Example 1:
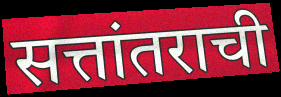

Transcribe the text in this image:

सत्तांतराची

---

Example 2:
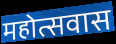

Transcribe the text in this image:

महोत्सवास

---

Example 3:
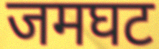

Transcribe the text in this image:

जमघट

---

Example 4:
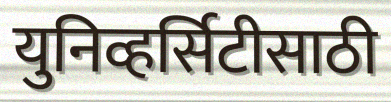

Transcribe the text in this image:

युनिव्हर्सिटीसाठी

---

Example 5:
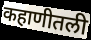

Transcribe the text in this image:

कहाणीतली